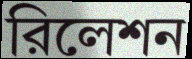
রিলেশন